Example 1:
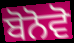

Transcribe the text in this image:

ਬੋਨੋਵੋ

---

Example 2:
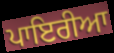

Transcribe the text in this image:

ਪਾਇਰੀਆ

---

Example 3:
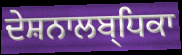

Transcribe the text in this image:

ਦੇਸ਼ਨਾਲਬ੍ਧਿਕਾ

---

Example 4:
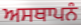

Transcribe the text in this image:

ਅਸਥਾਪਨੰ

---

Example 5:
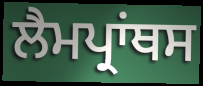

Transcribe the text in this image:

ਲੈਮਪ੍ਰਾਂਥਸ